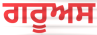
ਗਰੂਅਸ